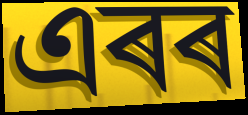
এৰৰ